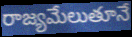
రాజ్యమేలుతూనే